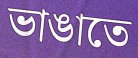
ভাঙাতে